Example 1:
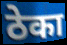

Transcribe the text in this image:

ठेका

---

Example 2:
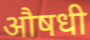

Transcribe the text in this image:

औषधी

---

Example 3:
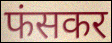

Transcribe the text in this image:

फंसकर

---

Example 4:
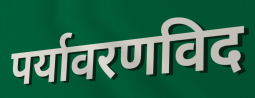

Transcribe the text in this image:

पर्यावरणविद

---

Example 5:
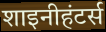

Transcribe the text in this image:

शाइनीहंटर्स